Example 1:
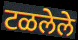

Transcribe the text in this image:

टळलेले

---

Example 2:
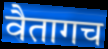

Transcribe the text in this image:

वैतागच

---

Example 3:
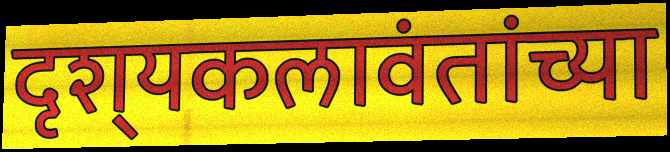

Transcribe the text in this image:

दृश्यकलावंतांच्या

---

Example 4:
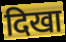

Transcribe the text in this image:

दिखा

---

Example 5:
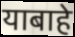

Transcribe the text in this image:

याबाहे